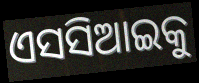
ଏସସିଆଇକୁ